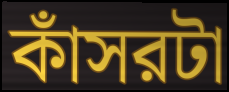
কাঁসরটা